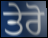
ਤੇਰੋ